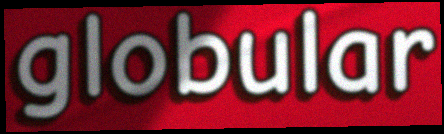
globular